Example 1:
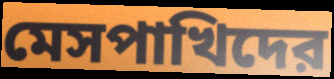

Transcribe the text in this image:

মেসপাখিদের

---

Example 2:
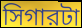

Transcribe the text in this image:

সিগারটা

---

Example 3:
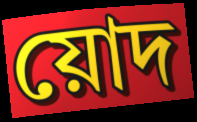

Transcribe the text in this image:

য়োদ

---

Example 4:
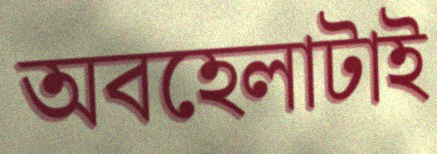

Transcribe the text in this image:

অবহেলাটাই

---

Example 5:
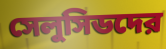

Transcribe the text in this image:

সেলুসিডদের